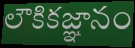
లౌకికజ్ఞానం